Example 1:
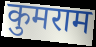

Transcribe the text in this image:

कुमराम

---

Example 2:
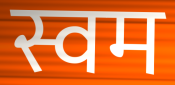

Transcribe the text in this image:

स्वम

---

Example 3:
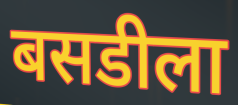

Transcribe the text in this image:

बसडीला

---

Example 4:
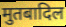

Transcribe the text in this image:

मुतबादिल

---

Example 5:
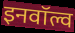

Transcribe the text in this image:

इनवॉल्व